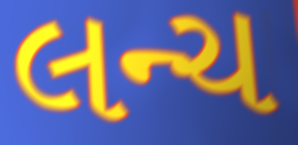
લન્ચ